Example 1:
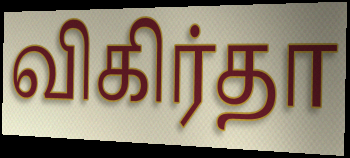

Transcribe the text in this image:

விகிர்தா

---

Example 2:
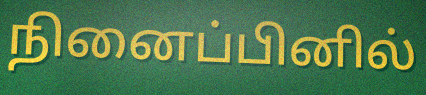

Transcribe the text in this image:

நினைப்பினில்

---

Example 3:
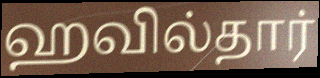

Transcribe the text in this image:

ஹவில்தார்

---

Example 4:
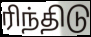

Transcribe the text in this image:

ரிந்திடு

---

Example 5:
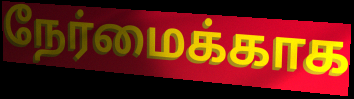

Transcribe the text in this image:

நேர்மைக்காக